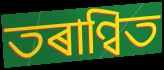
তৰাণ্বিত